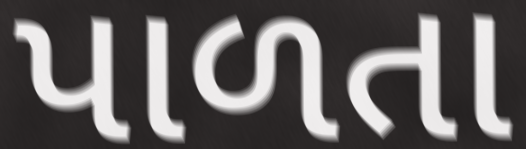
પાળતા